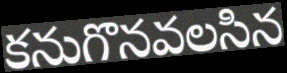
కనుగొనవలసిన